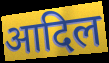
आदिल